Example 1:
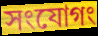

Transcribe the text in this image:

সংযোগং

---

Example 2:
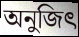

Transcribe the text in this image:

অনুজিৎ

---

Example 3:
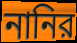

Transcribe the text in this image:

নানির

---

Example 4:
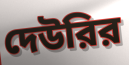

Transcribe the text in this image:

দেউরির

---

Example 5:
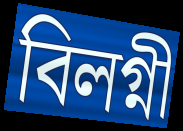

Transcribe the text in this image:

বিলগ্নী